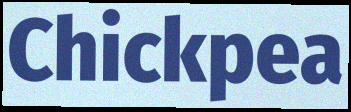
Chickpea